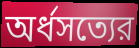
অর্ধসত্যের